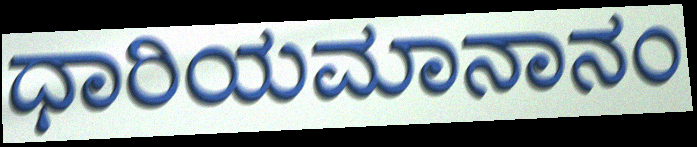
ಧಾರಿಯಮಾನಾನಂ